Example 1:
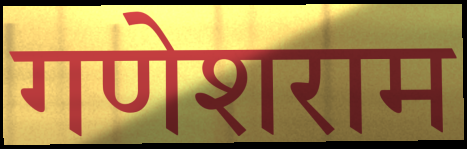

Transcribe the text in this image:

गणेशराम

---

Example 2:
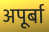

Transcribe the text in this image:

अपूर्बा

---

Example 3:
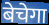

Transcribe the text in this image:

बेचेगा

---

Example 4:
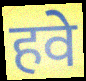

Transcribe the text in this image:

हवे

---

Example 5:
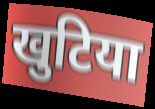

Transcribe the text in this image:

खुटिया